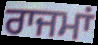
ਰਾਜਮਾਂ